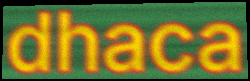
dhaca